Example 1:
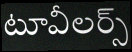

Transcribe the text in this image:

టూవీలర్స్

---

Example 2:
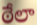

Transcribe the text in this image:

ఠేలా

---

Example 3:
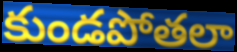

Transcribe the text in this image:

కుండపోతలా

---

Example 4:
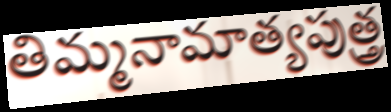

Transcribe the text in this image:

తిమ్మనామాత్యపుత్త్ర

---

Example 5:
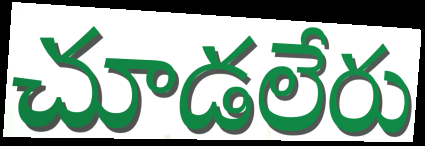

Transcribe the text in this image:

చూడలేరు